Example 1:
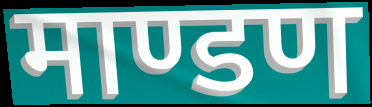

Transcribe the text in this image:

माण्डण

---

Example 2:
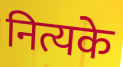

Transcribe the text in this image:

नित्यके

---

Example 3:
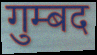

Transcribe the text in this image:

गुम्बद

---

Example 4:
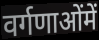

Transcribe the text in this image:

वर्गणाओंमें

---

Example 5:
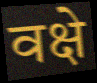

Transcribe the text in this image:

वक्षे